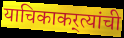
याचिकाकर्त्यांची